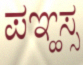
ಪಞ್ಹಸ್ಸ